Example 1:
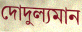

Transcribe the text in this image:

দোদুল্যমান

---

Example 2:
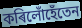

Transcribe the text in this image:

কৰিলোঁহেঁতেন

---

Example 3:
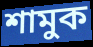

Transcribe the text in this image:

শামুক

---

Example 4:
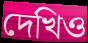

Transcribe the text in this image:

দেখিও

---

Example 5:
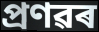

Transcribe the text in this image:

প্ৰণৱৰ